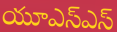
యూఎస్ఎస్